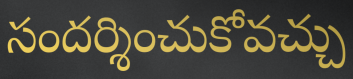
సందర్శించుకోవచ్చు